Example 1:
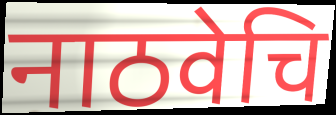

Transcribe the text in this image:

नाठवेचि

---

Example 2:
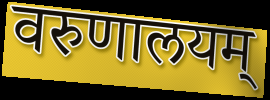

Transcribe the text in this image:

वरुणालयम्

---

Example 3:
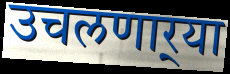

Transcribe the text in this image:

उचलणार्या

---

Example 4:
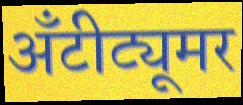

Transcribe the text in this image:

अँटीट्यूमर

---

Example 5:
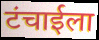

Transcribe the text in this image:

टंचाईला